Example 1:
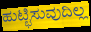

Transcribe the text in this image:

ಹುಟ್ಟಿಸುವುದಿಲ್ಲ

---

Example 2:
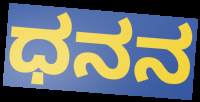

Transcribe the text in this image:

ಧನನ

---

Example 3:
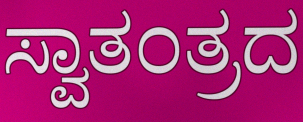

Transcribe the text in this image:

ಸ್ವಾತಂತ್ರದ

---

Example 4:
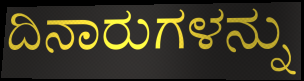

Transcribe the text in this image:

ದಿನಾರುಗಳನ್ನು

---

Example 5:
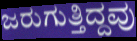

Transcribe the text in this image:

ಜರುಗುತ್ತಿದ್ದವು